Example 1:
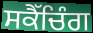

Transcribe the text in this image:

ਸਕੈੱਚਿੰਗ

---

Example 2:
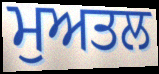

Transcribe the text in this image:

ਮੁਅਤਲ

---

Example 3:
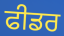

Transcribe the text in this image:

ਫੀਡਰ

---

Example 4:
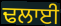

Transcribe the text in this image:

ਢਲਾਈ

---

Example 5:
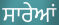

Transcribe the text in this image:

ਸਾਰੇਆਂ